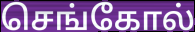
செங்கோல்